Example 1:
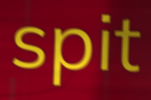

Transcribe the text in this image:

spit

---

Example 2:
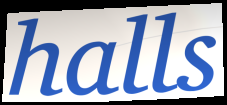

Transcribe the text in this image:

halls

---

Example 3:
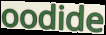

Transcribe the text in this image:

oodide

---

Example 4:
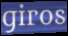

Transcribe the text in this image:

giros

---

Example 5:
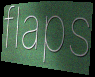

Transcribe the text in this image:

flaps